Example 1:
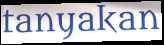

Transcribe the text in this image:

tanyakan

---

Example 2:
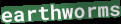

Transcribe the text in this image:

earthworms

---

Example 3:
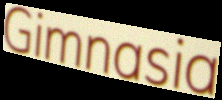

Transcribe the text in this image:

Gimnasia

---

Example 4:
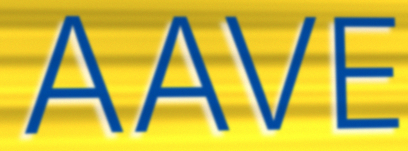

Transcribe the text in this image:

AAVE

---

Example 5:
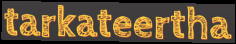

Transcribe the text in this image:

tarkateertha